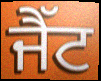
ਜੈੱਟ